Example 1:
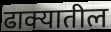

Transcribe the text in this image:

ढाक्यातील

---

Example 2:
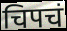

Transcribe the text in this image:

चिपचं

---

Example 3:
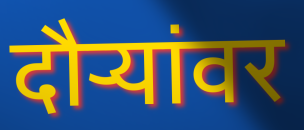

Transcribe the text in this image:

दौर्‍यांवर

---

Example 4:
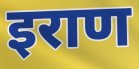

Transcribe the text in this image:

इराण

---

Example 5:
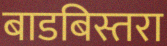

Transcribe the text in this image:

बाडबिस्तरा